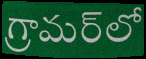
గ్రామర్‌లో